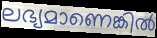
ലഭ്യമാണെങ്കിൽ